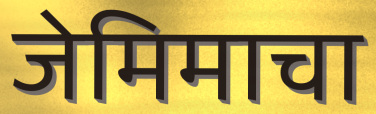
जेमिमाचा